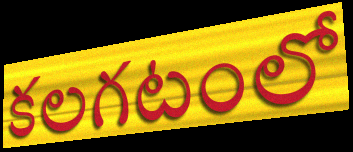
కలగటంలో